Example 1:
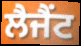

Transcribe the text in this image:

ਲੈਜੈਂਟ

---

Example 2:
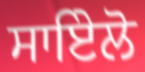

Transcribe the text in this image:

ਸਾਇੇਲੋ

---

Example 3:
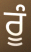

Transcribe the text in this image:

ਰੂੰ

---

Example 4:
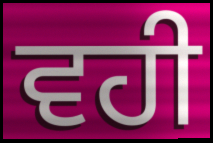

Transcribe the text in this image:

ਵਹੀ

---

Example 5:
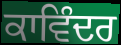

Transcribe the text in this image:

ਕਾਵਿੰਦਰ